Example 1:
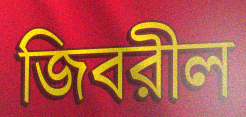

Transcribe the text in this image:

জিবরীল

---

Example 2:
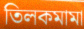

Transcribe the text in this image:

তিলকমামা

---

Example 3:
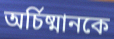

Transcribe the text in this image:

অর্চিষ্মানকে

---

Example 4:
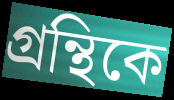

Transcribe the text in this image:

গ্রন্থিকে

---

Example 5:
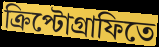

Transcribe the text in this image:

ক্রিপ্টোগ্রাফিতে